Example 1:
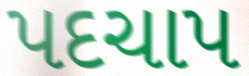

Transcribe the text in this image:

પદચાપ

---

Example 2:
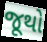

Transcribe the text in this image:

જૂથો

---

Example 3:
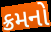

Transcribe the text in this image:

ક્રમનો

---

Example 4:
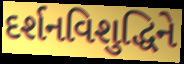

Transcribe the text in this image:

દર્શનવિશુદ્ધિને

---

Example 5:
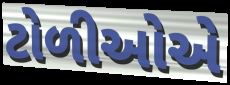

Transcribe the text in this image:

ટોળીઓએ